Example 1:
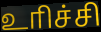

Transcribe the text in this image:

உரிச்சி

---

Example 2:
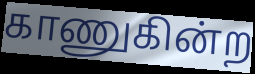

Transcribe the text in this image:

காணுகின்ற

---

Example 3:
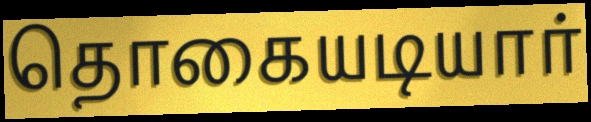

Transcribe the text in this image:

தொகையடியார்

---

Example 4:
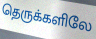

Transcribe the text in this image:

தெருக்களிலே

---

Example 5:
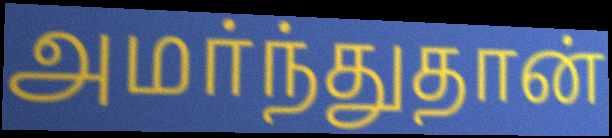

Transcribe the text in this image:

அமர்ந்துதான்